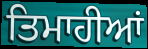
ਤਿਮਾਹੀਆਂ